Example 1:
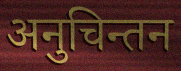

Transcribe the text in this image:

अनुचिन्तन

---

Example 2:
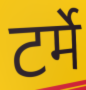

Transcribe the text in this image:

टर्मे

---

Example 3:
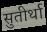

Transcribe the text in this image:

सुतीर्था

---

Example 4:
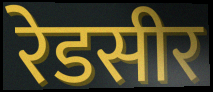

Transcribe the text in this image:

रेडसीर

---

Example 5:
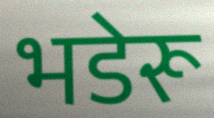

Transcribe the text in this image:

भडेरू